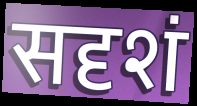
सदृशं